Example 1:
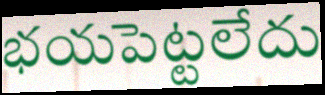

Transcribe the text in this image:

భయపెట్టలేదు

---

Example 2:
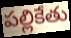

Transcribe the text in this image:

పల్లికేతు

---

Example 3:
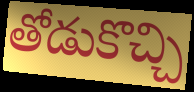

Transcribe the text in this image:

తోడుకొచ్చి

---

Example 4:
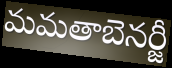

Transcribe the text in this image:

మమతాబెనర్జీ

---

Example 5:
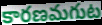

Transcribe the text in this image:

కారణమగుట